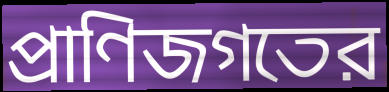
প্রাণিজগতের